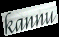
kannu